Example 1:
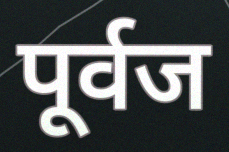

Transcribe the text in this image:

पूर्वज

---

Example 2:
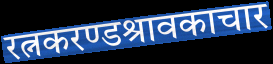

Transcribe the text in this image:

रत्नकरण्डश्रावकाचार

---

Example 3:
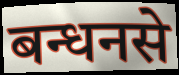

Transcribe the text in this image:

बन्धनसे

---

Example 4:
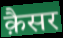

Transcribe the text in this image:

क़ैसर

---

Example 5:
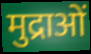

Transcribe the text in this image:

मुद्राओं